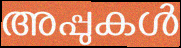
അപ്പുകൾ